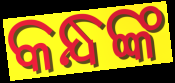
କନ୍ଧଙ୍କ